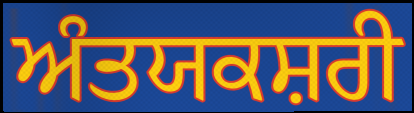
ਅੰਤਯਕਸ਼ਰੀ